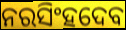
ନରସିଂହଦେବ